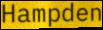
Hampden